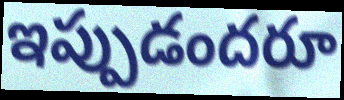
ఇప్పుడందరూ